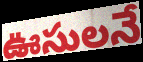
ఊసులనే